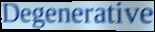
Degenerative